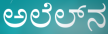
ಅಲೆಲ್‌ನ